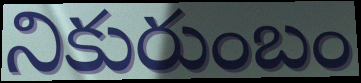
నికురుంబం